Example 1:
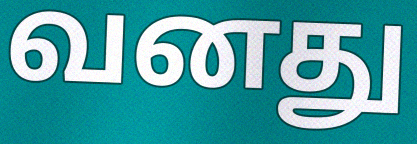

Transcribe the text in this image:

வனது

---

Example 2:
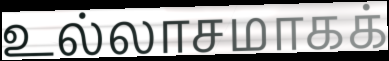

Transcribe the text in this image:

உல்லாசமாகக்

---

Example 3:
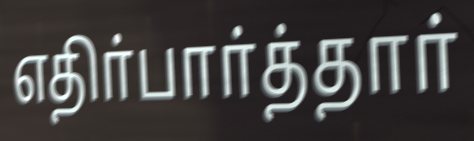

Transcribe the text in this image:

எதிர்பார்த்தார்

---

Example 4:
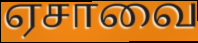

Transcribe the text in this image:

ஏசாவை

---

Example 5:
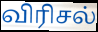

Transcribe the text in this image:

விரிசல்